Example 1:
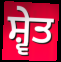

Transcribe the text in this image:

ਸ਼੍ਵੇਤ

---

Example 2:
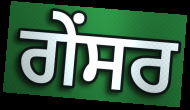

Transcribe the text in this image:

ਗੇਂਸਰ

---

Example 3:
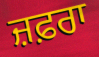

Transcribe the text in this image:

ਜ਼ਫ਼ਰਾ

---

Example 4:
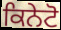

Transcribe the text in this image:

ਕਿਨੇਟੋ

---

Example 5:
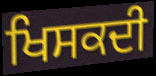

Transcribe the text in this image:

ਖਿਸਕਦੀ